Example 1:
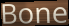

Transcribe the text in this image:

Bone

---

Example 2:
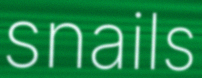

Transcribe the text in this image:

snails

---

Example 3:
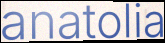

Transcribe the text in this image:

anatolia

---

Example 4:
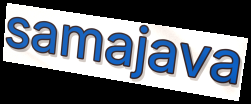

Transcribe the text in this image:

samajava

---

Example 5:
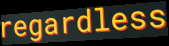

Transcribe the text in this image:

regardless